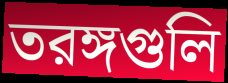
তরঙ্গগুলি